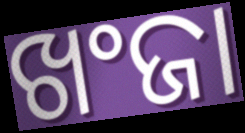
ଖଂଜା